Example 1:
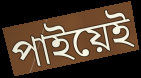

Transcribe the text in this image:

পাইয়েই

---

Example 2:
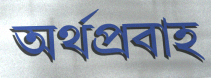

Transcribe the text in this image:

অর্থপ্রবাহ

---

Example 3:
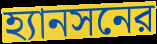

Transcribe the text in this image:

হ্যানসনের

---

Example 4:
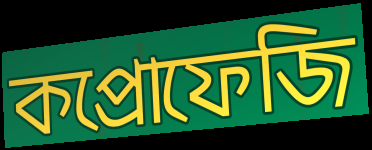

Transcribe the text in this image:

কপ্রোফেজি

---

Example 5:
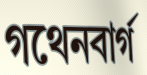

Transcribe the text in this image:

গথেনবার্গ